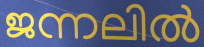
ജന്നലിൽ